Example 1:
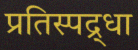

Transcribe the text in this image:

प्रतिस्पद्र्धा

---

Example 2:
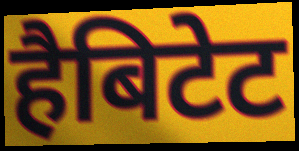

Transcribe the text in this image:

हैबिटेट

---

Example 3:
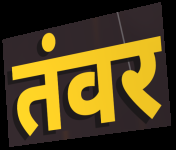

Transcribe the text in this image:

तंवर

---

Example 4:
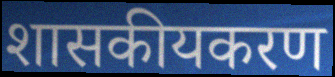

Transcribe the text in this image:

शासकीयकरण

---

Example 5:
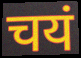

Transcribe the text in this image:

चयं